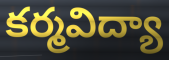
కర్మవిద్యా